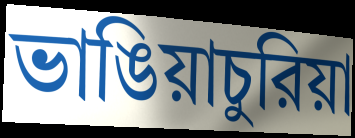
ভাঙিয়াচুরিয়া